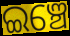
ଇଞ୍ଚେ